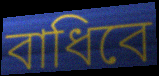
বাধিবে